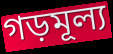
গড়মূল্য